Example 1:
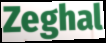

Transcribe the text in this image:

Zeghal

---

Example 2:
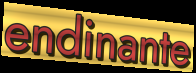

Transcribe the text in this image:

endinante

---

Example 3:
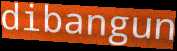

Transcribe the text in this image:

dibangun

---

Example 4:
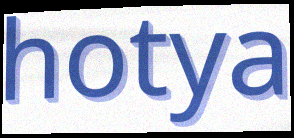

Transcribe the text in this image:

hotya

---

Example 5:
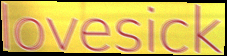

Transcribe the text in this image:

lovesick